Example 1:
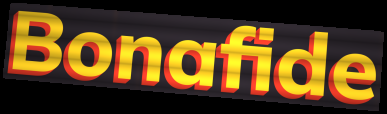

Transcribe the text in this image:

Bonafide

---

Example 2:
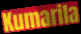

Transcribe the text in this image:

Kumarila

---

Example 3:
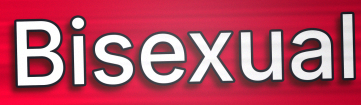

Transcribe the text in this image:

Bisexual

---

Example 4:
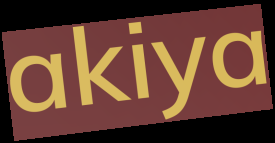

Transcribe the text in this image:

akiya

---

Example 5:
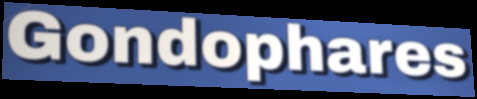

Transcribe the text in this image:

Gondophares